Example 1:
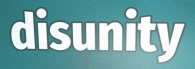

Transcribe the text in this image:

disunity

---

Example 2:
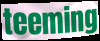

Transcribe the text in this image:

teeming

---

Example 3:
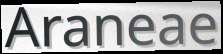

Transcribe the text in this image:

Araneae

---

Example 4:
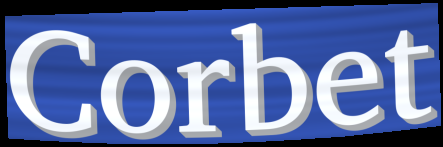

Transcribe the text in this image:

Corbet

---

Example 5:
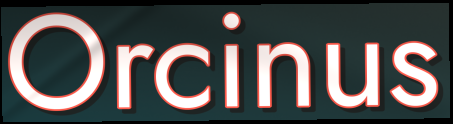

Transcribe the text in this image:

Orcinus